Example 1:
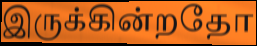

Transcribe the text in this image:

இருக்கின்றதோ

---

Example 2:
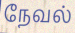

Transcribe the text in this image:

நேவல்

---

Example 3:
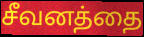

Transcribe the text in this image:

சீவனத்தை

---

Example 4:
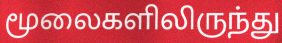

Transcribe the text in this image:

மூலைகளிலிருந்து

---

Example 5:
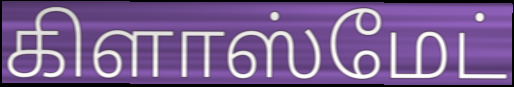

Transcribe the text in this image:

கிளாஸ்மேட்